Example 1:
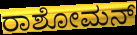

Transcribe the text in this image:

ರಾಶೋಮನ್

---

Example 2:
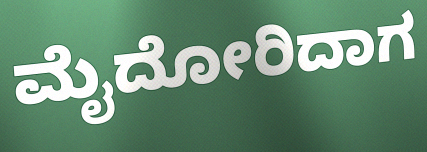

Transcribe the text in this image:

ಮೈದೋರಿದಾಗ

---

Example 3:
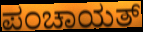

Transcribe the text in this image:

ಪಂಚಾಯತ್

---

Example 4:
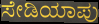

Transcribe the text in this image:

ಸೇಡಿಯಾಪು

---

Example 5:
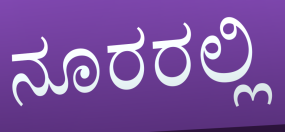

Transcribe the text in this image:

ನೂರರಲ್ಲಿ